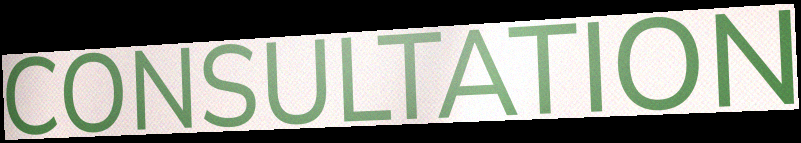
CONSULTATION